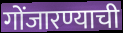
गोंजारण्याची